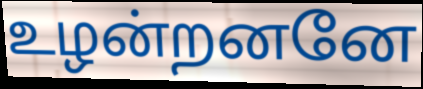
உழன்றனனே